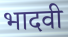
भादवी